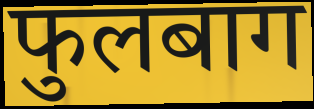
फुलबाग